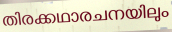
തിരക്കഥാരചനയിലും